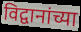
विद्वानांच्या